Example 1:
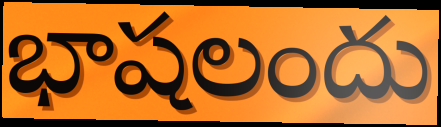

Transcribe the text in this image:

భాషలందు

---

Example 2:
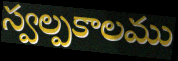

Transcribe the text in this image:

స్వల్పకాలము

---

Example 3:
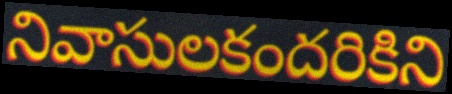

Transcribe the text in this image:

నివాసులకందరికిని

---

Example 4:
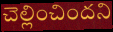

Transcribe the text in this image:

చెల్లించిందని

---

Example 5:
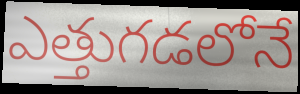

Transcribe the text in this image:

ఎత్తుగడలోనే